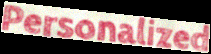
Personalized